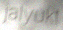
jalyukt